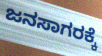
ಜನಸಾಗರಕ್ಕೆ